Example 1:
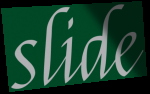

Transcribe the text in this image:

slide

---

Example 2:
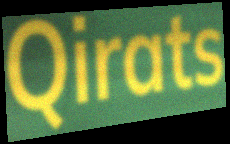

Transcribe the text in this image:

Qirats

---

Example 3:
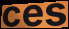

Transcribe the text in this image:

ces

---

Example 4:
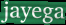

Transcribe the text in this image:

jayega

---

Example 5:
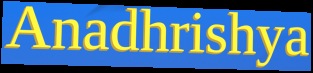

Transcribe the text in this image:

Anadhrishya